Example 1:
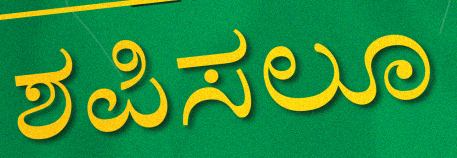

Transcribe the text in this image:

ಶಪಿಸಲೂ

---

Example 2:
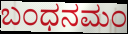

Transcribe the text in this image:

ಬಂಧನಮಂ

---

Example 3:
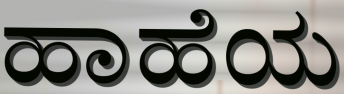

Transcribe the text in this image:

ಹಾಹೆಯ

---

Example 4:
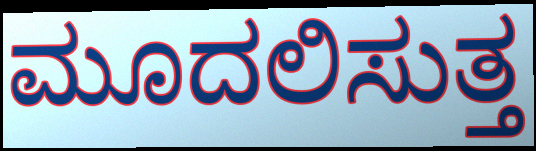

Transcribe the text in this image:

ಮೂದಲಿಸುತ್ತ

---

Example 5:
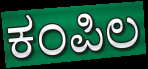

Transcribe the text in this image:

ಕಂಪಿಲ